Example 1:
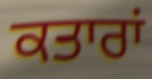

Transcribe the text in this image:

ਕਤਾਰਾਂ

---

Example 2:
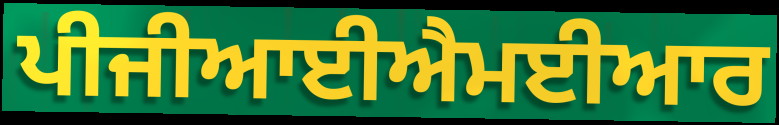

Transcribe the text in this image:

ਪੀਜੀਆਈਐਮਈਆਰ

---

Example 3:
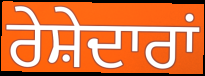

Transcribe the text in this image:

ਰੇਸ਼ੇਦਾਰਾਂ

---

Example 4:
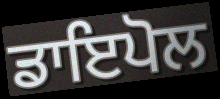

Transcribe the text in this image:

ਡਾਇਪੋਲ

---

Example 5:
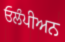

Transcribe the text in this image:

ਓਲੰਪੀਅਨ